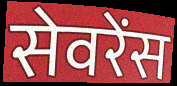
सेवरेंस